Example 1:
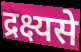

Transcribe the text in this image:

द्रक्ष्यसे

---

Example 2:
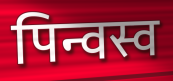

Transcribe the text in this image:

पिन्वस्व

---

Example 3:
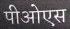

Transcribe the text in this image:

पीओएस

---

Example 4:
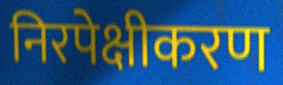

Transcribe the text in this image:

निरपेक्षीकरण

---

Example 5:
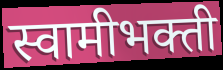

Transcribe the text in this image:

स्वामीभक्ती